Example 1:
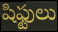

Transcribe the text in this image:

షిఫ్టులు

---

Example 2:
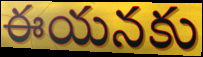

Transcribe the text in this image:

ఈయనకు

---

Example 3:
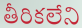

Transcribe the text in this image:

తీరికలేని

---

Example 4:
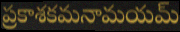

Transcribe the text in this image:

ప్రకాశకమనామయమ్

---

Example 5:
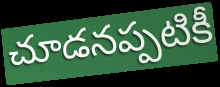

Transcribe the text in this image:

చూడనప్పటికీ